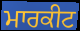
ਮਾਰਕੀਟ